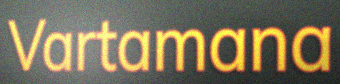
Vartamana